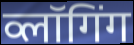
व्लॉगिंग